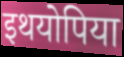
इथयोपिया